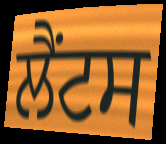
ਲੈਂਟਸ